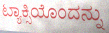
ಟ್ಯಾಕ್ಸಿಯೊಂದನ್ನು